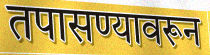
तपासण्यावरून